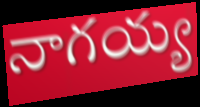
నాగయ్య